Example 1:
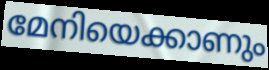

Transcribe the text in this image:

മേനിയെക്കാണും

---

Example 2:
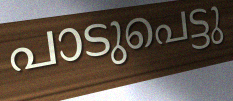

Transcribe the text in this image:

പാടുപെട്ടു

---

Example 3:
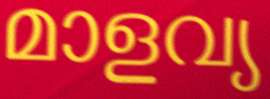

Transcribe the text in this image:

മാളവ്യ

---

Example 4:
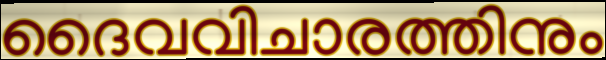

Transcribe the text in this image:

ദൈവവിചാരത്തിനും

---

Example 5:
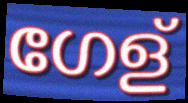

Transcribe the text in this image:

ഗേള്